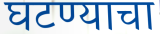
घटण्याचा